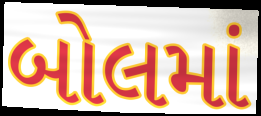
બોલમાં